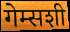
गेम्सशी